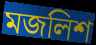
মজলিশ